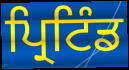
ਪ੍ਰਿਟਿੰਡ